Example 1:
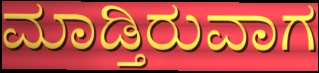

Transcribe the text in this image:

ಮಾಡ್ತಿರುವಾಗ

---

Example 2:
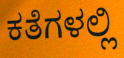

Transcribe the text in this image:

ಕತೆಗಳಲ್ಲಿ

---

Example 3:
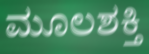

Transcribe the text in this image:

ಮೂಲಶಕ್ತಿ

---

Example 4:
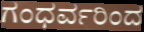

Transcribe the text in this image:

ಗಂಧರ್ವರಿಂದ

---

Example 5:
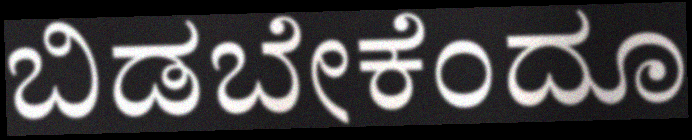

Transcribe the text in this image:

ಬಿಡಬೇಕೆಂದೂ